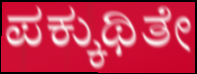
ಪಕ್ಕುಥಿತೇ